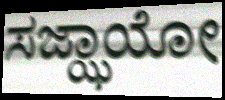
ಸಜ್ಝಾಯೋ